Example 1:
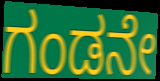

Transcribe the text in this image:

ಗಂಡನೇ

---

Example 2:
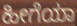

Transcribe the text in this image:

ಹೀಗೆಯಾ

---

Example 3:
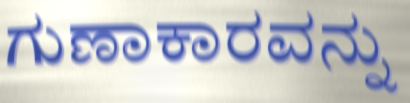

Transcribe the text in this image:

ಗುಣಾಕಾರವನ್ನು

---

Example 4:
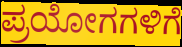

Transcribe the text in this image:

ಪ್ರಯೋಗಗಳಿಗೆ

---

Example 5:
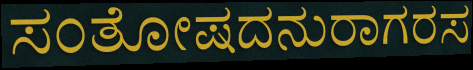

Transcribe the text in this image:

ಸಂತೋಷದನುರಾಗರಸ